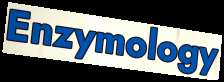
Enzymology